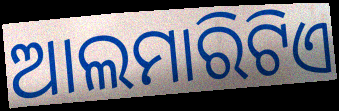
ଆଲମାରିଟିଏ